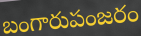
బంగారుపంజరం